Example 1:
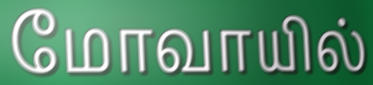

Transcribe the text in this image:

மோவாயில்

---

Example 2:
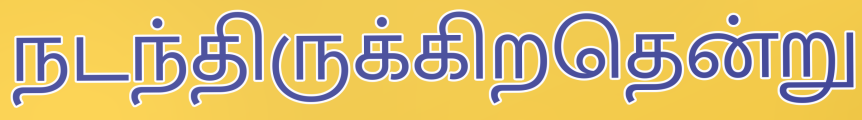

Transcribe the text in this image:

நடந்திருக்கிறதென்று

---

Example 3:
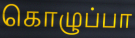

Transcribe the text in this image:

கொழுப்பா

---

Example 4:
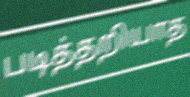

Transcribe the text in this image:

படித்தறியாத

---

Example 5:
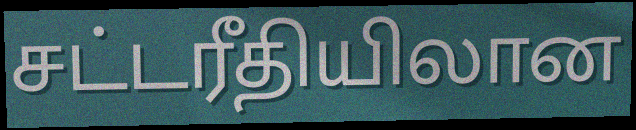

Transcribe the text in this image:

சட்டரீதியிலான